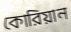
কোরিয়ান